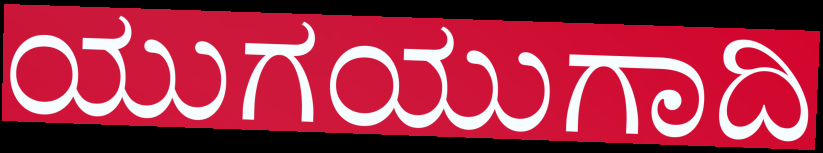
ಯುಗಯುಗಾದಿ